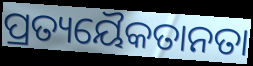
ପ୍ରତ୍ୟୟୈକତାନତା